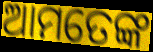
ଆମତେଙ୍କ